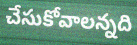
చేసుకోవాలన్నది